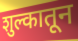
शुल्कातून